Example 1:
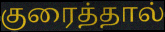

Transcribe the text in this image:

குரைத்தால்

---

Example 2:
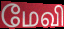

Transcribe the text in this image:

மேவி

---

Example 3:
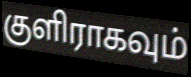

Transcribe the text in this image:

குளிராகவும்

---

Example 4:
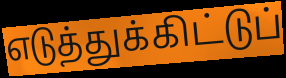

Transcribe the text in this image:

எடுத்துக்கிட்டுப்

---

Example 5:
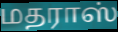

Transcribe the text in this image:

மதராஸ்